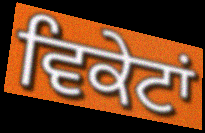
ਵਿਕੇਟਾਂ